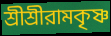
শ্রীশ্রীরামকৃষ্ণ